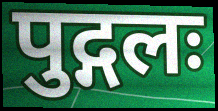
पुद्गलः